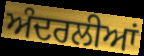
ਅੰਦਰਲੀਆਂ